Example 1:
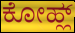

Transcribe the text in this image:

ಕೋಹ್ಲ್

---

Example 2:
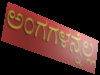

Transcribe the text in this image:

ಅಂಗಗಳನ್ನೆಲ್ಲ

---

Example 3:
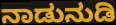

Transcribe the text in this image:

ನಾಡುನುಡಿ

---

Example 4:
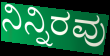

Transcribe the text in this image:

ನಿನ್ನಿರವು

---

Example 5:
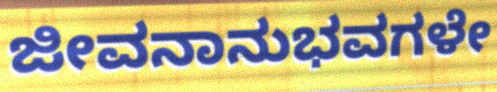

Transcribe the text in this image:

ಜೀವನಾನುಭವಗಳೇ